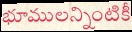
భూములన్నింటికీ